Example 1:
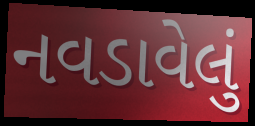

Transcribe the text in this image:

નવડાવેલું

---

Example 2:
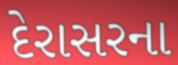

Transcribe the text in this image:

દેરાસરના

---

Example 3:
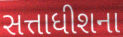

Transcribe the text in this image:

સત્તાધીશના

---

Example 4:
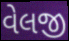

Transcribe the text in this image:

વેલજી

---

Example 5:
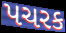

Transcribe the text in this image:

પચરક